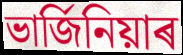
ভাৰ্জিনিয়াৰ